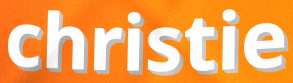
christie